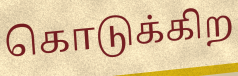
கொடுக்கிற